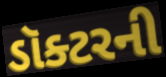
ડૉક્ટરની